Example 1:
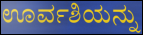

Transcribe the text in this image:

ಊರ್ವಶಿಯನ್ನು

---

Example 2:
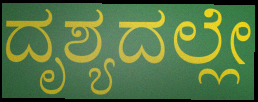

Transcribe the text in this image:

ದೃಶ್ಯದಲ್ಲೇ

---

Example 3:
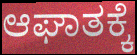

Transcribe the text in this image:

ಆಘಾತಕ್ಕೆ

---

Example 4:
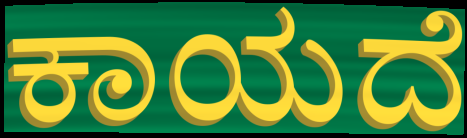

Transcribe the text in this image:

ಕಾಯದೆ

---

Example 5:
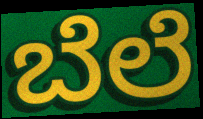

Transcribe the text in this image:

ಬೆಲೆ